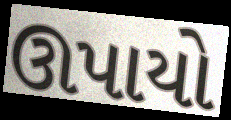
ઊપાયો